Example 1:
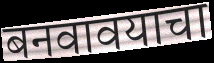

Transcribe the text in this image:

बनवावयाचा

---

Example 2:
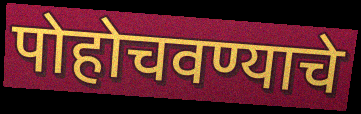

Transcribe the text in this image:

पोहोचवण्याचे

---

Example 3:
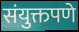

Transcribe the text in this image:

संयुक्तपणे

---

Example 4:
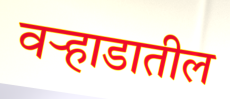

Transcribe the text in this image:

वऱ्हाडातील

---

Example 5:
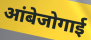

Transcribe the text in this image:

आंबेजोगाई